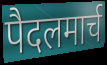
पैदलमार्च